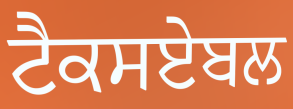
ਟੈਕਸਏਬਲ